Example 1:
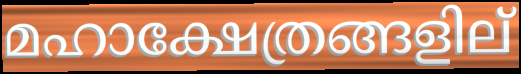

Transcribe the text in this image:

മഹാക്ഷേത്രങ്ങളില്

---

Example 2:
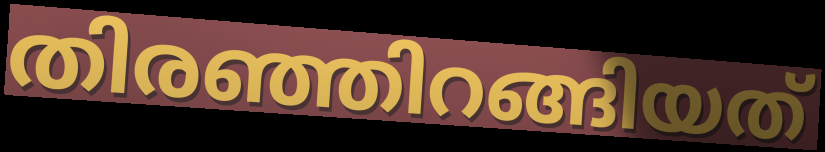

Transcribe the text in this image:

തിരഞ്ഞിറങ്ങിയത്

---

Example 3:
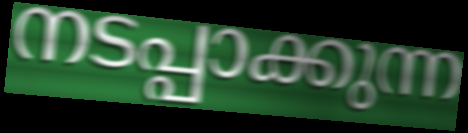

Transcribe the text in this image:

നടപ്പാക്കുന്ന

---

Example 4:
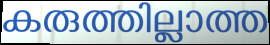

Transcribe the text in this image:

കരുത്തില്ലാത്ത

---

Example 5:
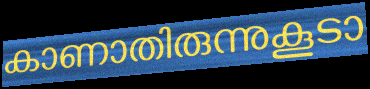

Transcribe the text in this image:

കാണാതിരുന്നുകൂടാ